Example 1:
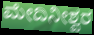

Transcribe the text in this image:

ಮೇದಿನೀಶ್ವರ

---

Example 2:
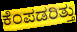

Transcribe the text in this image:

ಕೆಂಪಡರಿತ್ತು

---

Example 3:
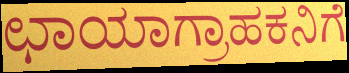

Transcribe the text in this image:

ಛಾಯಾಗ್ರಾಹಕನಿಗೆ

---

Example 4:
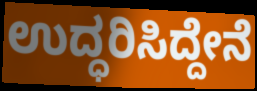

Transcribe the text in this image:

ಉದ್ಧರಿಸಿದ್ದೇನೆ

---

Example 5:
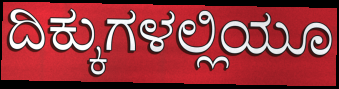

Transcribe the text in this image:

ದಿಕ್ಕುಗಳಲ್ಲಿಯೂ